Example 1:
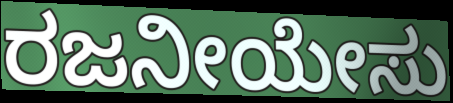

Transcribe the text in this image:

ರಜನೀಯೇಸು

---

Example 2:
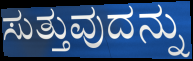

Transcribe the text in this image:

ಸುತ್ತುವುದನ್ನು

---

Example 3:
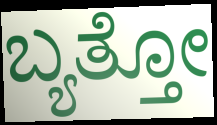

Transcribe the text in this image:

ಬ್ಯತ್ತೋ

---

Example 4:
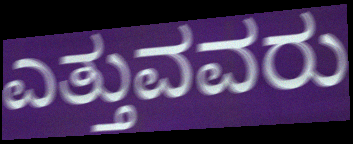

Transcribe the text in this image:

ಎತ್ತುವವರು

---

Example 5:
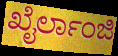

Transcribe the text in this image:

ಖೈರ್ಲಾಂಜಿ